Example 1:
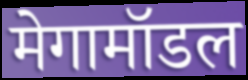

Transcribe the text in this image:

मेगामॉडल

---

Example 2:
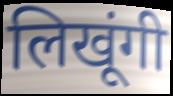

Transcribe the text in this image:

लिखूंगी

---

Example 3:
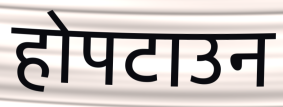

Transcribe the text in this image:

होपटाउन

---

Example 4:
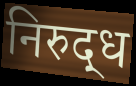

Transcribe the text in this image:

निरुद्ध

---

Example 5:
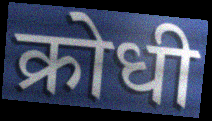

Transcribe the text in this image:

क्रोधी